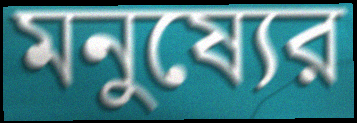
মনুষ্যের